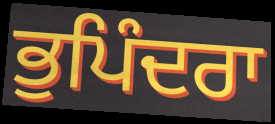
ਭੁਪਿੰਦਰਾ